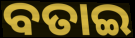
ବତାଇ